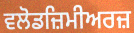
ਵਲੋਡਜ਼ਿਮੀਅਰਜ਼